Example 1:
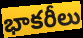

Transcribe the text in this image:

భాకరీలు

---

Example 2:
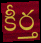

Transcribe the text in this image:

కీర్త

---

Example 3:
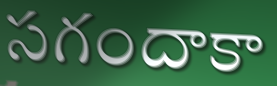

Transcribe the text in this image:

సగందాకా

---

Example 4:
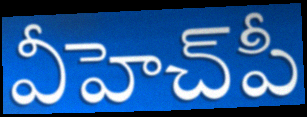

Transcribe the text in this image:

వీహెచ్‌పీ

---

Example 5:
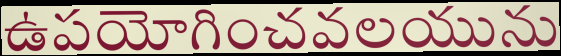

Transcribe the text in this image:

ఉపయోగించవలయును